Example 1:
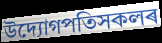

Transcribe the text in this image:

উদ্যোগপতিসকলৰ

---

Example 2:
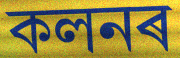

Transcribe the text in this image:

কলনৰ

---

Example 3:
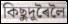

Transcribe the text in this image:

কিছুদূৰৈলৈ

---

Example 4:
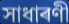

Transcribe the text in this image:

সাধাৰণী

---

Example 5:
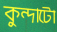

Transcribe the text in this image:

কুন্দাটো